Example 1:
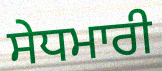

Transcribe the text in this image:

ਸੇਧਮਾਰੀ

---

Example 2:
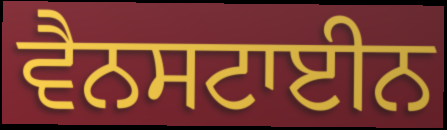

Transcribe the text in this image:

ਵੈਨਸਟਾਈਨ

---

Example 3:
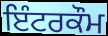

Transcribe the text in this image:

ਇੰਟਰਕੌਮ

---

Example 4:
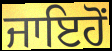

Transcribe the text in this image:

ਜਾਇਹੋਂ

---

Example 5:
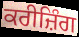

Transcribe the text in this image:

ਕਰੀਜ਼ਿੰਗ